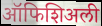
ऑफिशिअली